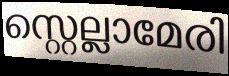
സ്റ്റെല്ലാമേരി